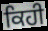
ਕਿਹੀ